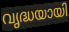
വൃദ്ധയായി